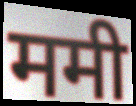
ममी